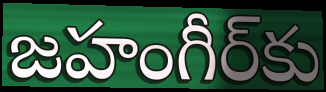
జహంగీర్‌కు